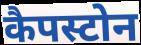
कैपस्टोन